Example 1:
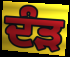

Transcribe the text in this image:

ਦੰੜ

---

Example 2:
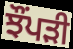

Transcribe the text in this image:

ਝੌਂਪੜੀ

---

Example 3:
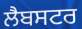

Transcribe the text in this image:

ਲੈਬਸਟਰ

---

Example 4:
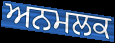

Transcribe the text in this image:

ਅਨਮਲਕ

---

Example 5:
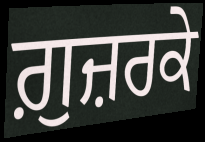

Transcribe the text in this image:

ਗ਼ੁਜ਼ਰਕੇ